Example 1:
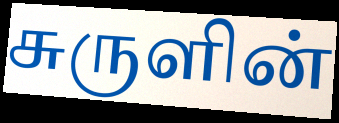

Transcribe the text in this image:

சுருளின்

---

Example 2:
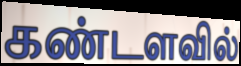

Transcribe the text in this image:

கண்டளவில்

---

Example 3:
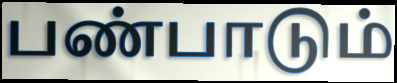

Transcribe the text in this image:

பண்பாடும்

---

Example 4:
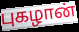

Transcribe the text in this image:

புகழான்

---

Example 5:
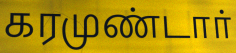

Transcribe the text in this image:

கரமுண்டார்